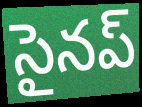
సైనప్